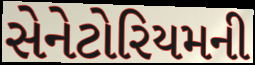
સેનેટોરિયમની